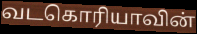
வடகொரியாவின்